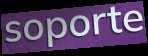
soporte